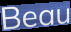
Beau